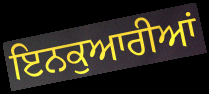
ਇਨਕੁਆਰੀਆਂ